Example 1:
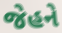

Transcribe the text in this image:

જેહને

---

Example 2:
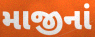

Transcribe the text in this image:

માજીનાં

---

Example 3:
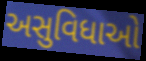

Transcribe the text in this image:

અસુવિધાઓ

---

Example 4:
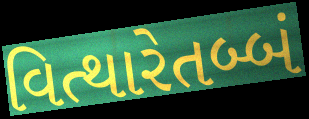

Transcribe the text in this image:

વિત્થારેતબ્બં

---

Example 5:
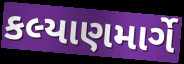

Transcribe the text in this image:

કલ્યાણમાર્ગે